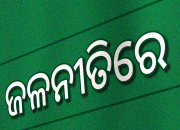
ଜଳନୀତିରେ